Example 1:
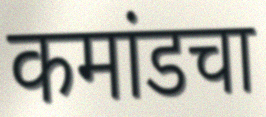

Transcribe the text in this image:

कमांडचा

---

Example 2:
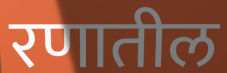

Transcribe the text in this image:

रणातील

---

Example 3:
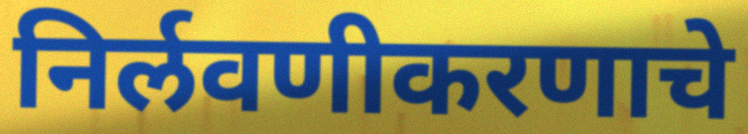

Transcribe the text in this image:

निर्लवणीकरणाचे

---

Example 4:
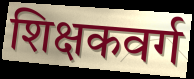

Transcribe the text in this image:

शिक्षकवर्ग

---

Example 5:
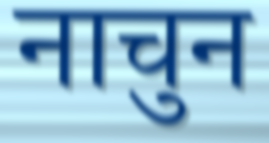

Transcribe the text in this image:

नाचुन